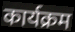
कार्यक्रम